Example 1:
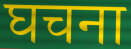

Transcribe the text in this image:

घचना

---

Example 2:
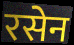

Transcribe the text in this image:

रसेन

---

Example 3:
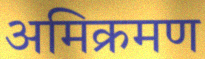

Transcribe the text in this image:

अमिक्रमण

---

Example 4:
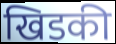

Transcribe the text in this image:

खिडकी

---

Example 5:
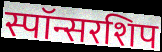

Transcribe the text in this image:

स्पॉन्सरशिप